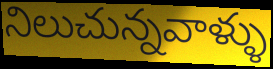
నిలుచున్నవాళ్ళు